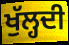
ਖੁੱਲ੍ਹਦੀ